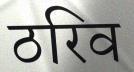
ठरिव